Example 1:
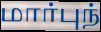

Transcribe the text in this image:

மார்புந்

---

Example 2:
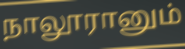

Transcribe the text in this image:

நாலூரானும்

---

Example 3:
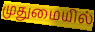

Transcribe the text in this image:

முதுமையில்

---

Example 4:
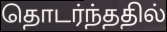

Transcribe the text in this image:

தொடர்ந்ததில்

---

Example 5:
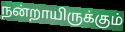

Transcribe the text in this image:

நன்றாயிருக்கும்